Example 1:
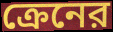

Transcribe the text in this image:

ক্রেনের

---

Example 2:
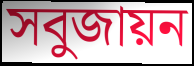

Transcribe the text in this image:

সবুজায়ন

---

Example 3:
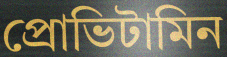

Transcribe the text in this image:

প্রোভিটামিন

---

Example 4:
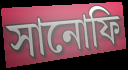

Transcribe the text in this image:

সানোফি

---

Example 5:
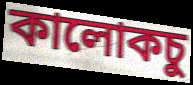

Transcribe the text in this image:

কালোকচু